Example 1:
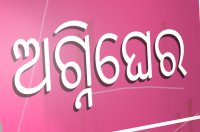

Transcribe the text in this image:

ଅଗ୍ନିଘେର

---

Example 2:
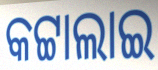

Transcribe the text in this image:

କଟ୍ଟାଲାଇ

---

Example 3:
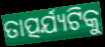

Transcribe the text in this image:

ତାତ୍ପର୍ଯ୍ୟଟିକୁ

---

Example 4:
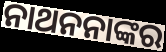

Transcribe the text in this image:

ନାଥନନାଙ୍କର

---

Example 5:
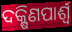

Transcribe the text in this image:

ଦକ୍ଷିଣପାର୍ଶ୍ବ